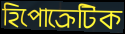
হিপোক্রেটিক